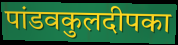
पांडवकुलदीपका